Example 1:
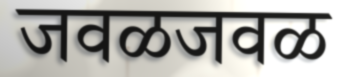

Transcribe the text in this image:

जवळजवळ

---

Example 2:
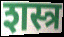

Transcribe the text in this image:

शस्त्र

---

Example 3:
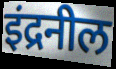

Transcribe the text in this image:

इंद्रनील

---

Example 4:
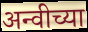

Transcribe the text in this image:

अन्वीच्या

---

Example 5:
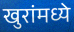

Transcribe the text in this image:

खुरांमध्ये